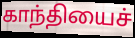
காந்தியைச்